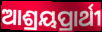
ଆଶ୍ରୟପ୍ରାର୍ଥୀ